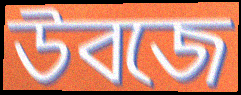
উবজে